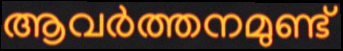
ആവർത്തനമുണ്ട്